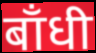
बाँधी